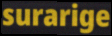
surarige